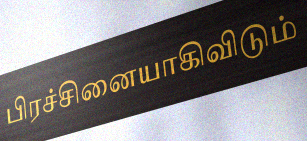
பிரச்சினையாகிவிடும்